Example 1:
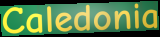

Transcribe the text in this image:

Caledonia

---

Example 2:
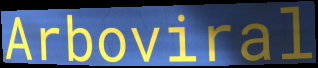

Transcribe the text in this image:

Arboviral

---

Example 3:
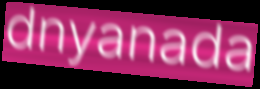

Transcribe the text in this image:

dnyanada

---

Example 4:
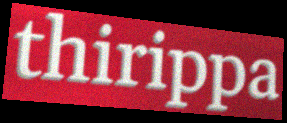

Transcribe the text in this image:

thirippa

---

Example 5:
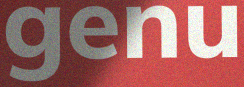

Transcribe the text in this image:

genu